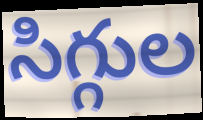
సిగ్గుల